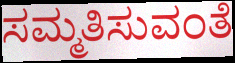
ಸಮ್ಮತಿಸುವಂತೆ